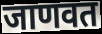
जाणवत